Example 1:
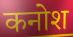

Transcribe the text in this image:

कनोश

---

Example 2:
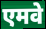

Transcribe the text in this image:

एमवे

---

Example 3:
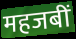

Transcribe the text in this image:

महजबीं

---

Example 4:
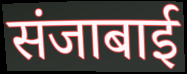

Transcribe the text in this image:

संजाबाई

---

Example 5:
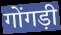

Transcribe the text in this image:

गोंगड़ी